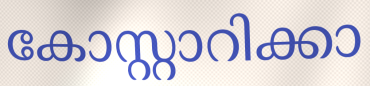
കോസ്റ്റാറിക്കാ